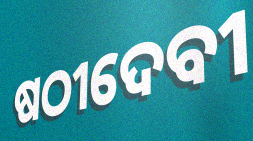
ଷଠୀଦେବୀ